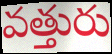
వత్తురు